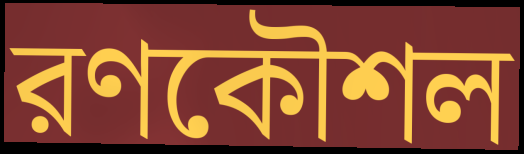
রণকৌশল